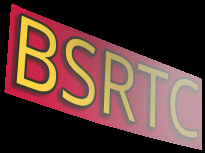
BSRTC